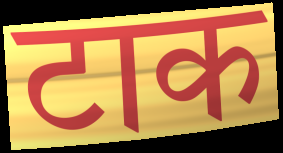
टाक